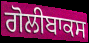
ਗੋਲੀਬਾਕਸ